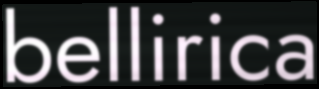
bellirica